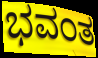
ಭವಂತ